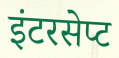
इंटरसेप्ट